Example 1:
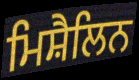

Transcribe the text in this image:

ਮਿਸ਼ੈਲਿਨ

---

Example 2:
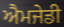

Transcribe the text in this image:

ਐਮਜੇਡੀ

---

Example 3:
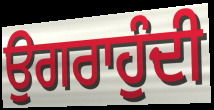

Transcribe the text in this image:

ਉਗਰਾਹੁੰਦੀ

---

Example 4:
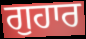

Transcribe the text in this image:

ਗੁਹਾਰ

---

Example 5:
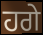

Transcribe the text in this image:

ਹਗੇ